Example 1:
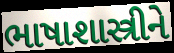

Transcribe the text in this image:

ભાષાશાસ્ત્રીને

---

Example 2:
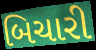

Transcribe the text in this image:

બિચારી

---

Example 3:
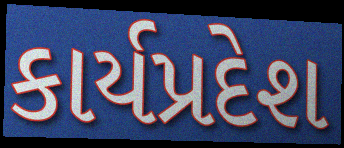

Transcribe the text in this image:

કાર્યપ્રદેશ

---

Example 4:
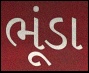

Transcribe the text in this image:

ભૂંડા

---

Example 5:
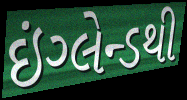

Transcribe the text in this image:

ઇંગ્લેન્ડથી